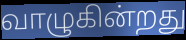
வாழுகின்றது